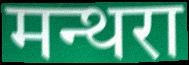
मन्थरा